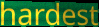
hardest